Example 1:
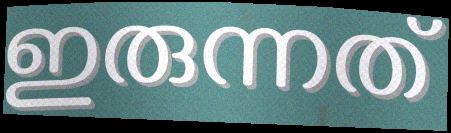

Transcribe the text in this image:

ഇരുന്നത്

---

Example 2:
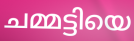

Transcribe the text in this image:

ചമ്മട്ടിയെ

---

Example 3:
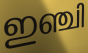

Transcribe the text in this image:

ഇഞ്ചി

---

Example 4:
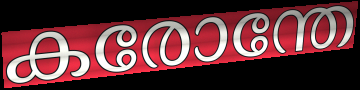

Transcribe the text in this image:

കരോന്തേ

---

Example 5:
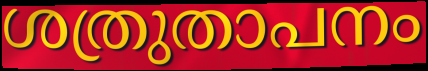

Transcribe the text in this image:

ശത്രുതാപനം